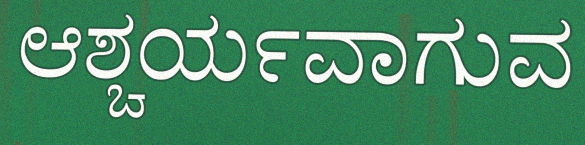
ಆಶ್ಚರ್ಯವಾಗುವ